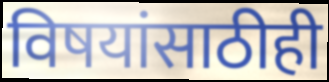
विषयांसाठीही